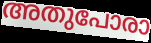
അതുപോരാ